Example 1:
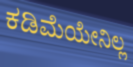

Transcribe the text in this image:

ಕಡಿಮೆಯೇನಿಲ್ಲ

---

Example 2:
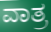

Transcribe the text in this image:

ವಾತ್ರ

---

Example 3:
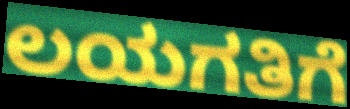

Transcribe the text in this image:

ಲಯಗತಿಗೆ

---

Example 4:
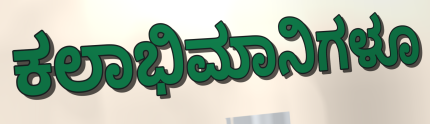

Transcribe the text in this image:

ಕಲಾಭಿಮಾನಿಗಳೂ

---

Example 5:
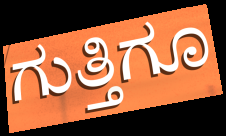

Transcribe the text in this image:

ಗುತ್ತಿಗೂ